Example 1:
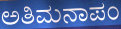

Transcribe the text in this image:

ಅತಿಮನಾಪಂ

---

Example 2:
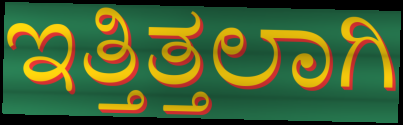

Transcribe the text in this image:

ಇತ್ತಿತ್ತಲಾಗಿ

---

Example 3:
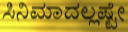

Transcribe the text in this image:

ಸಿನಿಮಾದಲ್ಲಷ್ಟೇ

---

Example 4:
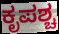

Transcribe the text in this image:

ಕೃಪಶ್ಚ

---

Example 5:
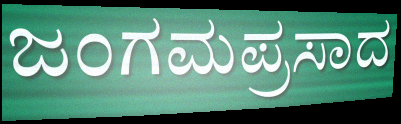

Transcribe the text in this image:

ಜಂಗಮಪ್ರಸಾದ